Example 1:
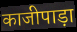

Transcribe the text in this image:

काजीपाड़ा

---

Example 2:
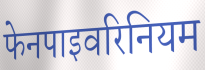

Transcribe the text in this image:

फेनपाइवरिनियम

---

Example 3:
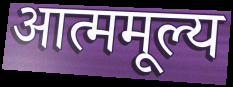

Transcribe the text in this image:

आत्ममूल्य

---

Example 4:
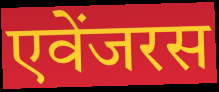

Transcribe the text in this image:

एवेंजरस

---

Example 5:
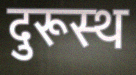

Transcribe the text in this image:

दुरूस्थ